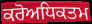
ਕਰੋਅਧਿਕਤਮ